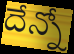
దేన్నో